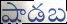
షాడబ